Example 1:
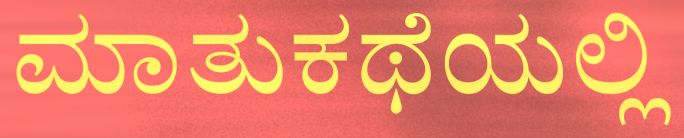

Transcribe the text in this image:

ಮಾತುಕಥೆಯಲ್ಲಿ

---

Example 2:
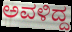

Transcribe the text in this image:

ಅವಳಿದ್ದ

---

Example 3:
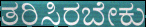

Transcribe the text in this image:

ತರಿಸಿರಬೇಕು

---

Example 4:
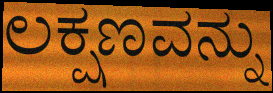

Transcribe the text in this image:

ಲಕ್ಷಣವನ್ನು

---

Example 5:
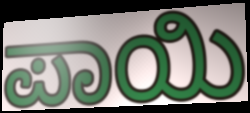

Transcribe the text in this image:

ಪಾಯಿ